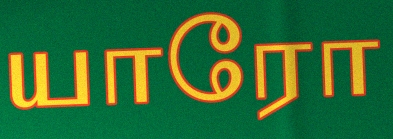
யாரோ